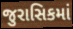
જુરાસિકમાં